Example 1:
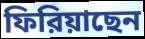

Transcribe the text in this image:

ফিরিয়াছেন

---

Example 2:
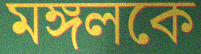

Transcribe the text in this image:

মঙ্গলকে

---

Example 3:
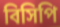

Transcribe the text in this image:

বিসিপি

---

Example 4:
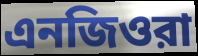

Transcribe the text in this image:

এনজিওরা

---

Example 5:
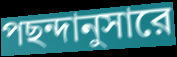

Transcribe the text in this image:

পছন্দানুসারে